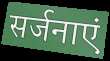
सर्जनाएं